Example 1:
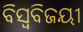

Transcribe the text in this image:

ବିସ୍ଵବିଜୟୀ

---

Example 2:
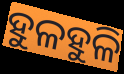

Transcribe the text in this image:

ହୁଳହୁଳି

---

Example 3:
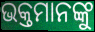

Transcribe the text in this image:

ଭକ୍ତମାନଙ୍କୁ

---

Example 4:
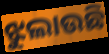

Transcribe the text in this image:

ଝୁଲାଉଛି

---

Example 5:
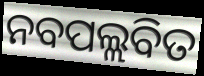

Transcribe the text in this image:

ନବପଲ୍ଲବିତ